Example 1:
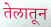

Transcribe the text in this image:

तेलातून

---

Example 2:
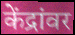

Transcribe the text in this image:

केंद्रांवर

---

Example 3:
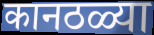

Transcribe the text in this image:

कानठळ्या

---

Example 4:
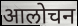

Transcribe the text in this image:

आलोचन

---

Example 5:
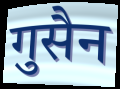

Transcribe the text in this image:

गुसैन